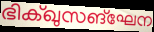
ഭിക്ഖുസങ്ഘേന